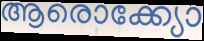
ആരൊക്ക്യോ